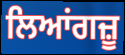
ਲਿਆਂਗਜ਼ੂ